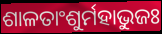
ଶାଳତାଂଶୁର୍ମହାଭୁଜଃ